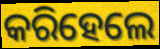
କରିହେଲେ